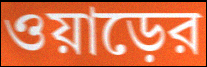
ওয়াড়ের